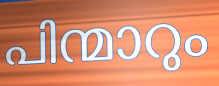
പിന്മാറും